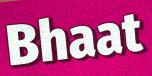
Bhaat